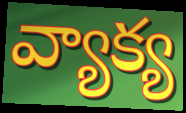
వ్యాక్య